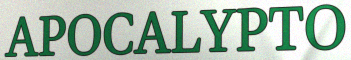
APOCALYPTO